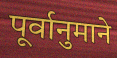
पूर्वानुमाने